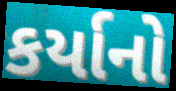
કર્યાનો